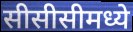
सीसीसीमध्ये